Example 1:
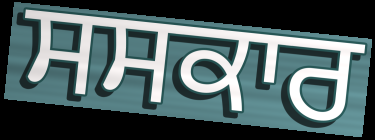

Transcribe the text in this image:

ਸਸਕਾਰ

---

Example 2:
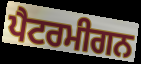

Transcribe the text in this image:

ਪੈਟਰਮੀਗਨ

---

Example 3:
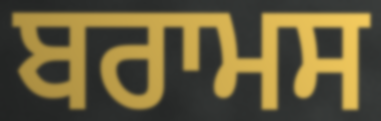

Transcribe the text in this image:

ਬਰਾਮਸ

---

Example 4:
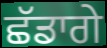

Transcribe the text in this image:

ਛੱਡਾਗੇ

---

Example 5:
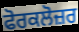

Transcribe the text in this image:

ਫੋਰਕਲੋਜ਼ਰ